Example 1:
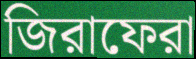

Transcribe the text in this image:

জিরাফেরা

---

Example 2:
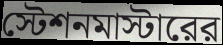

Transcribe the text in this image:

স্টেশনমাস্টারের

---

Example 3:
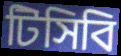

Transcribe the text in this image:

টিসিবি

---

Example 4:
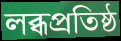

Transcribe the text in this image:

লব্ধপ্রতিষ্ঠ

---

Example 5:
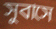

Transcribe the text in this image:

সুবাসে